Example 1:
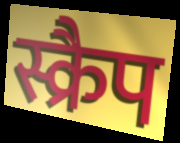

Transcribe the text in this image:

स्क्रैप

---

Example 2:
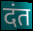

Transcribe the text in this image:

दंत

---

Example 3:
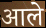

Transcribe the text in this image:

आले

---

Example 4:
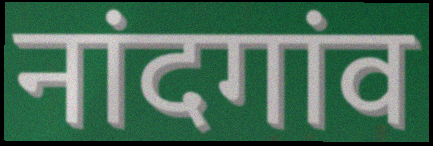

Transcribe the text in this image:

नांदगांव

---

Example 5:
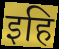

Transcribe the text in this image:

इहि